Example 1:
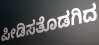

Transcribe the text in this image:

ಪೀಡಿಸತೊಡಗಿದ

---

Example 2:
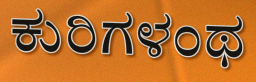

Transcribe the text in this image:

ಕುರಿಗಳಂಥ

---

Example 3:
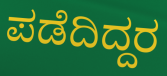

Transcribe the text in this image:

ಪಡೆದಿದ್ದರ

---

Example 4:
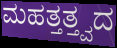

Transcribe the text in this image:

ಮಹತ್ತತ್ತ್ವದ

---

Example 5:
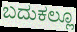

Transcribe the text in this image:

ಬದುಕಲ್ಲೂ